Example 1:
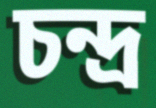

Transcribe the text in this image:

চন্দ্র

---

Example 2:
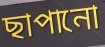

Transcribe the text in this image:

ছাপানো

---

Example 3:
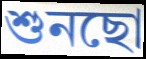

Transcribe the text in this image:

শুনছো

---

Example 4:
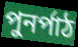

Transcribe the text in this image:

পুনর্পাঠ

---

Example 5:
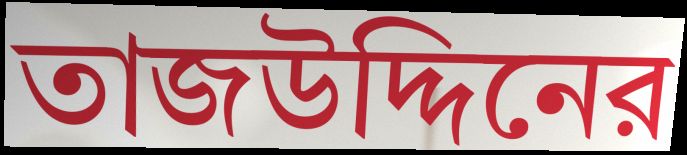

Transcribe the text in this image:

তাজউদ্দিনের